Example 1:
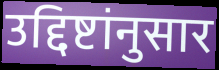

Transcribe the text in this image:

उद्दिष्टांनुसार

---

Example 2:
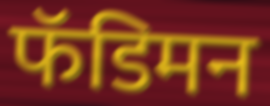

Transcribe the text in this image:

फॅडिमन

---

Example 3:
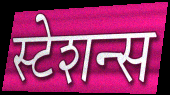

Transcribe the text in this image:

स्टेशन्स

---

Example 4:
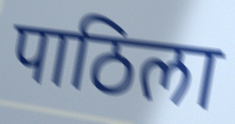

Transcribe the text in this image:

पाठिला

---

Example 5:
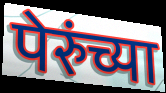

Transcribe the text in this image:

पेरुंच्या